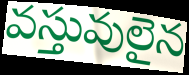
వస్తువులైన